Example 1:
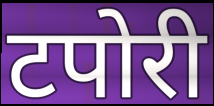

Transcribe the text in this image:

टपोरी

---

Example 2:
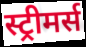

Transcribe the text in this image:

स्ट्रीमर्स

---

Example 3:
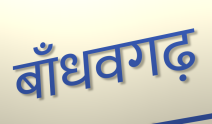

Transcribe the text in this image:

बाँधवगढ़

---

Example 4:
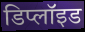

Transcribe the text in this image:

डिप्लॉइड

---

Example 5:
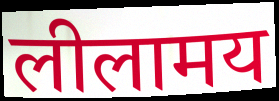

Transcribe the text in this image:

लीलामय